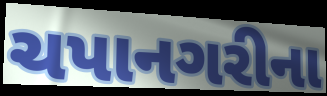
ચપાનગરીના